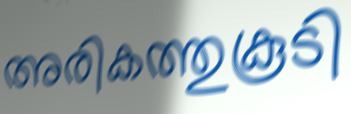
അരികത്തുകൂടി